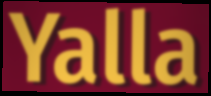
Yalla